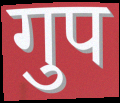
गुप